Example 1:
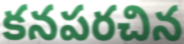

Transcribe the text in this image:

కనపరచిన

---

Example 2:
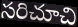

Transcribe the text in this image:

సరిచూచి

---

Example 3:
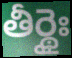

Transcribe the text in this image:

తీర్థైః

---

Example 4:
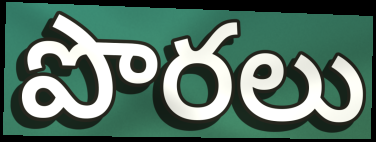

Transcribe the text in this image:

పొరలు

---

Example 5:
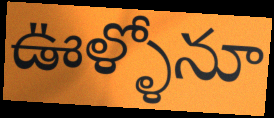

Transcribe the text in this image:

ఊళ్ళోనూ